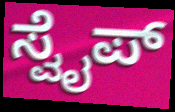
ಸ್ವೈಪ್